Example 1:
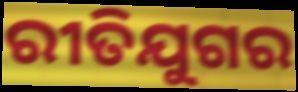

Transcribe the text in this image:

ରୀତିଯୁଗର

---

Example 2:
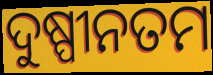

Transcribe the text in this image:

ଦୁଷ୍ପୀନତମ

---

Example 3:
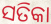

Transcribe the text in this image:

ସତିକା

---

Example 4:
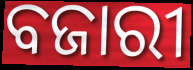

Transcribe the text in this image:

ବଜାରୀ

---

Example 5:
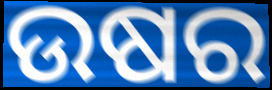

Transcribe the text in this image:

ଉଷର